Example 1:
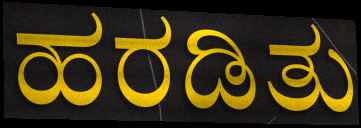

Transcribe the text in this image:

ಹರಡಿತು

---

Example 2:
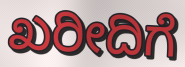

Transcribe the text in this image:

ಖರೀದಿಗೆ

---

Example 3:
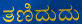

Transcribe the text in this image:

ತಣಿದುದು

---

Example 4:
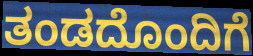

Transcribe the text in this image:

ತಂಡದೊಂದಿಗೆ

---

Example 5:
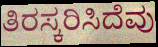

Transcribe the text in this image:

ತಿರಸ್ಕರಿಸಿದೆವು